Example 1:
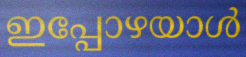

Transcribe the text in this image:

ഇപ്പോഴയാൾ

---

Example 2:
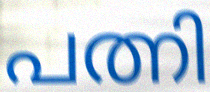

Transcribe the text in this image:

പത്നി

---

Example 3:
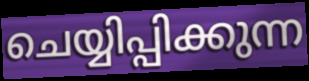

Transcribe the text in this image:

ചെയ്യിപ്പിക്കുന്ന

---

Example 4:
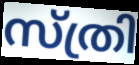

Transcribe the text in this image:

സ്ത്രി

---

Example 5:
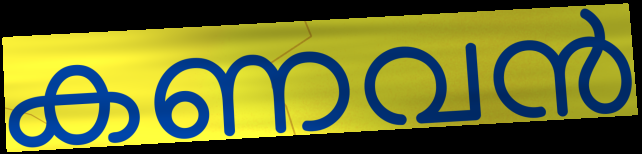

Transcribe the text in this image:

കണവൻ